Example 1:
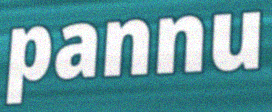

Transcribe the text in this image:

pannu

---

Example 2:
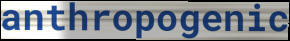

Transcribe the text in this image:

anthropogenic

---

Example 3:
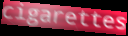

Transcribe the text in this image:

cigarettes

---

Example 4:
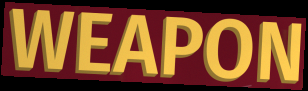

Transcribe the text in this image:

WEAPON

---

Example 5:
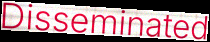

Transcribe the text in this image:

Disseminated